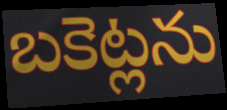
బకెట్లను